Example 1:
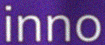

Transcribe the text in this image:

inno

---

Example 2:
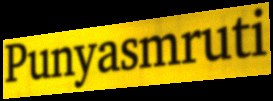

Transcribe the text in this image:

Punyasmruti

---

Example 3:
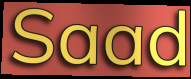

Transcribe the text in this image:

Saad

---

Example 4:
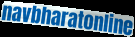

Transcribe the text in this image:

navbharatonline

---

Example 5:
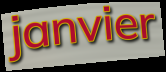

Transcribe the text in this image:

janvier